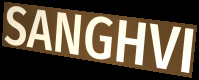
SANGHVI